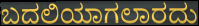
ಬದಲಿಯಾಗಲಾರದು